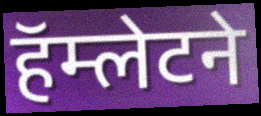
हॅम्लेटने